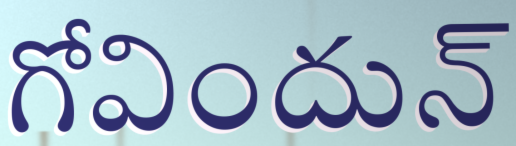
గోవిందున్